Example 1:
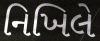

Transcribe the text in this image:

નિખિલે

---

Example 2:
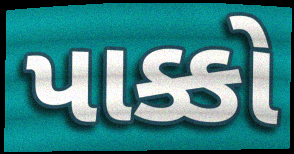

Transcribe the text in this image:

પાક્કો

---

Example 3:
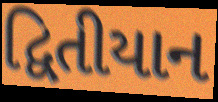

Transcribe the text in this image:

દ્વિતીયાન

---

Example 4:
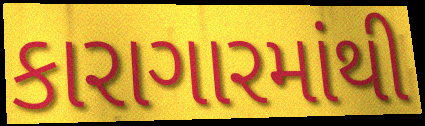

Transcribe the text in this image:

કારાગારમાંથી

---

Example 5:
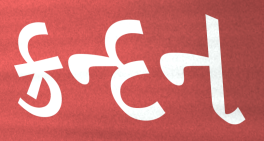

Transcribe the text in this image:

ક્રન્દન